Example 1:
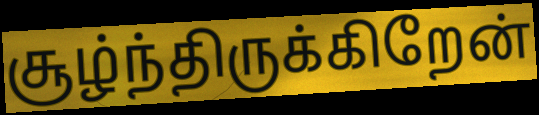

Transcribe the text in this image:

சூழ்ந்திருக்கிறேன்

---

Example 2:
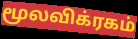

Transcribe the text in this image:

மூலவிக்ரகம்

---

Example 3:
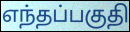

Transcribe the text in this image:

எந்தப்பகுதி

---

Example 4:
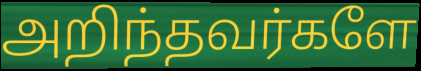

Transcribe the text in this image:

அறிந்தவர்களே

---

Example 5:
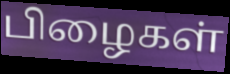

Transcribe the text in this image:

பிழைகள்